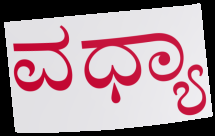
ವಧ್ಯಾ